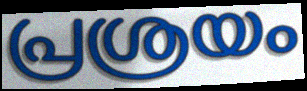
പ്രശ്രയം